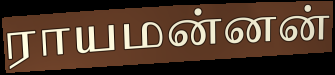
ராயமன்னன்